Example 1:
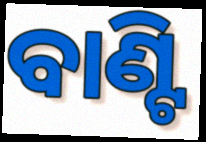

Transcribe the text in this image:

ବାଣ୍ଟି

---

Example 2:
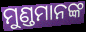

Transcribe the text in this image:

ମୁଣ୍ଡମାନଙ୍କ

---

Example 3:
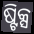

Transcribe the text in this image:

ଷ୍ଟିକ୍ସ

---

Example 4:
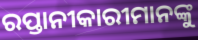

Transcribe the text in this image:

ରପ୍ତାନୀକାରୀମାନଙ୍କୁ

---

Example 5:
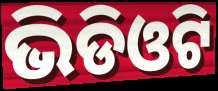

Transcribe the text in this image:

ଭିଡିଓଟି